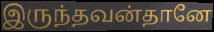
இருந்தவன்தானே